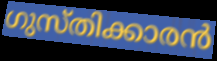
ഗുസ്തിക്കാരൻ